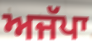
ਅਜੱਪਾ